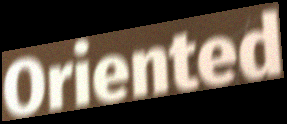
Oriented